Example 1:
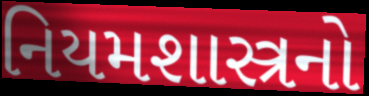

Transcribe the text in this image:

નિયમશાસ્ત્રનો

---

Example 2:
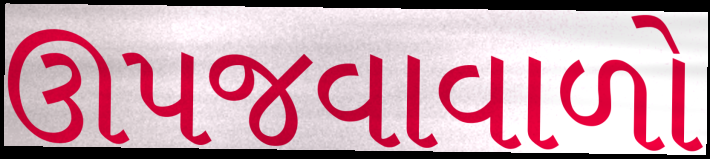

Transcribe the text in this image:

ઊપજવાવાળો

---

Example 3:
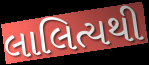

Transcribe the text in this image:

લાલિત્યથી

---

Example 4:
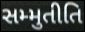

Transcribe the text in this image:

સમ્મુતીતિ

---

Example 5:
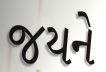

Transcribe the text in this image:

જયને